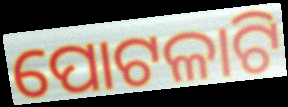
ପୋଟଳାଟି